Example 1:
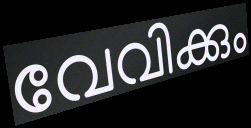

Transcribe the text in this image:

വേവിക്കും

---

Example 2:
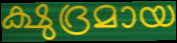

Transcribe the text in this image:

ക്ഷുദ്രമായ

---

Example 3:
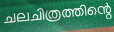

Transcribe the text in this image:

ചലചിത്രത്തിന്റെ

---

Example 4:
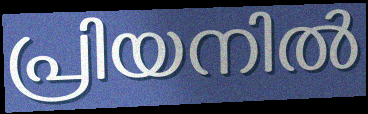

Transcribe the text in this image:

പ്രിയനിൽ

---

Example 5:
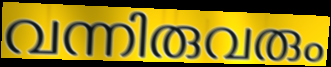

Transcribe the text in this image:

വന്നിരുവരും